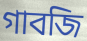
গাবজি